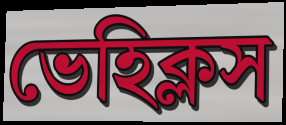
ভেহিক্লস